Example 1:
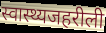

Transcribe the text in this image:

स्वास्थ्यजहरीली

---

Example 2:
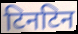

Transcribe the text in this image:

टिनटिन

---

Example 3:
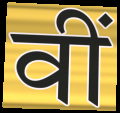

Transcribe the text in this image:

वीं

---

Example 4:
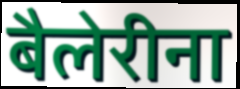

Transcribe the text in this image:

बैलेरीना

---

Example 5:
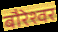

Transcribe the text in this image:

बौरेश्वर